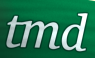
tmd